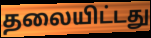
தலையிட்டது